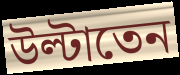
উল্টাতেন